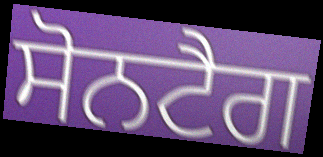
ਸੋਨਟੈਗ